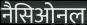
नैसिओनल